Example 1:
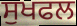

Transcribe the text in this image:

ਸੁਖਫਲ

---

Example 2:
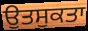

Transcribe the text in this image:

ਉਤਸੁਕਤਾ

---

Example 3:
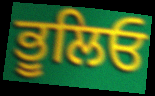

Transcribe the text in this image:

ਭੂਲਿਓ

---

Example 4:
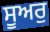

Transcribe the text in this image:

ਸੂਅਰੁ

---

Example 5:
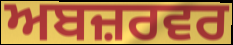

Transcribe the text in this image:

ਅਬਜ਼ਰਵਰ